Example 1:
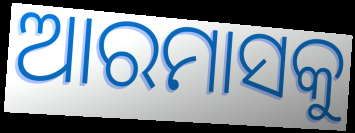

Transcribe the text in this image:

ଆରମାସକୁ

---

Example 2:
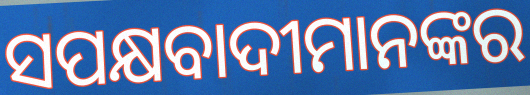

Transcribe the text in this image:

ସପକ୍ଷବାଦୀମାନଙ୍କର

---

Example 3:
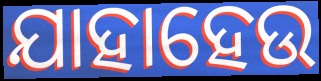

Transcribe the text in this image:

ଯାହାହେଉ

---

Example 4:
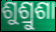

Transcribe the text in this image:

ଶୁଶ୍ରୁଶା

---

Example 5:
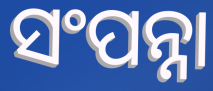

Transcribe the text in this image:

ସଂପନ୍ନା